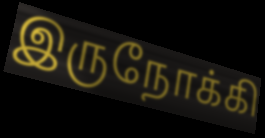
இருநோக்கி